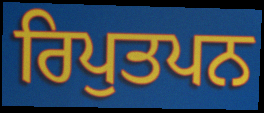
ਰਿਪੁਤਪਨ